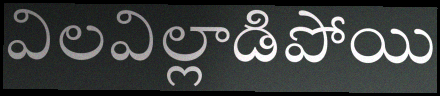
విలవిల్లాడిపోయి